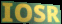
IOSR